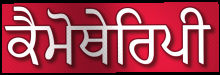
ਕੈਮੋਥੇਰਿਪੀ